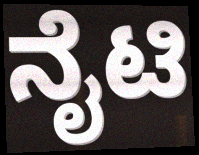
ನೈಟಿ